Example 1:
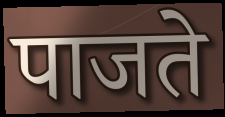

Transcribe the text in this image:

पाजते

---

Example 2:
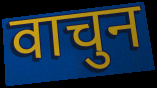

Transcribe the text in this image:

वाचुन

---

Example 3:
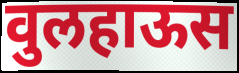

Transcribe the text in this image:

वुलहाऊस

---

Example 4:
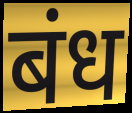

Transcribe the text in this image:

बंध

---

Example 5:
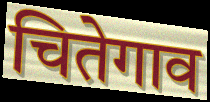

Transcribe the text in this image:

चितेगाव